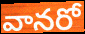
వానరో